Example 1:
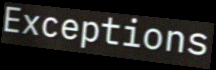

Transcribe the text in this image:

Exceptions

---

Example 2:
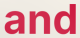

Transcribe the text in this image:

and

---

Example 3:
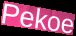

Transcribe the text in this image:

Pekoe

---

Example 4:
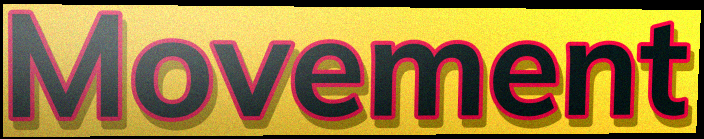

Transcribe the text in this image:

Movement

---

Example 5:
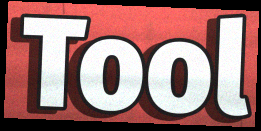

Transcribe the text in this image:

Tool